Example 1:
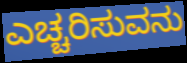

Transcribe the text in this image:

ಎಚ್ಚರಿಸುವನು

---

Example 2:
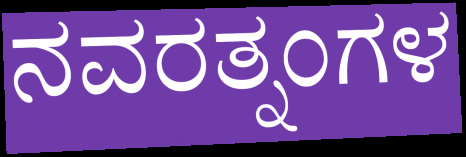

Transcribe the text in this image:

ನವರತ್ನಂಗಳ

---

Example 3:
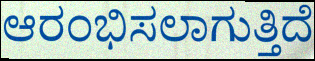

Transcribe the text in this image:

ಆರಂಭಿಸಲಾಗುತ್ತಿದೆ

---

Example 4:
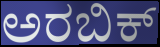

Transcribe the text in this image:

ಅರಬಿಕ್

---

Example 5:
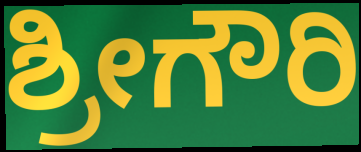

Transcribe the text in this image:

ಶ್ರೀಗೌರಿ